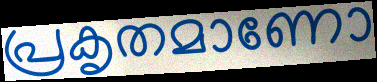
പ്രകൃതമാണോ